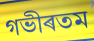
গভীৰতম